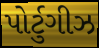
પોર્ટુગીઝ